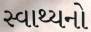
સ્વાથ્યનો